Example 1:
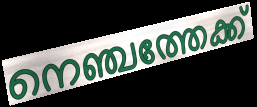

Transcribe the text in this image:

നെഞ്ചത്തേക്ക്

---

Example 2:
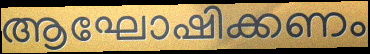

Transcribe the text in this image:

ആഘോഷിക്കണം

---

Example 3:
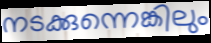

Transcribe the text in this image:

നടക്കുന്നെങ്കിലും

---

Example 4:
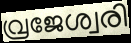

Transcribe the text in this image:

വ്രജേശ്വരി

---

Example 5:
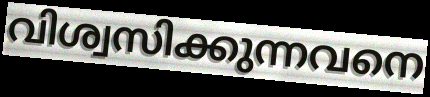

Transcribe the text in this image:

വിശ്വസിക്കുന്നവനെ